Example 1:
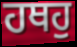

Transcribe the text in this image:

ਹਥਹੁ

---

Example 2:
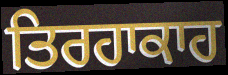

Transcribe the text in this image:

ਤਿਰਹਾਕਾਹ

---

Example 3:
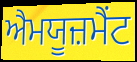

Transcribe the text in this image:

ਐਮਯੂਜ਼ਮੈਂਟ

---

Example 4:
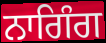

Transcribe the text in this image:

ਨਾਗਿੰਗ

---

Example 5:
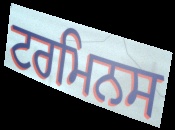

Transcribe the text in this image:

ਟਰਮਿਨਸ